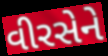
વીરસેને